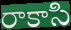
రాకాసి